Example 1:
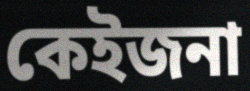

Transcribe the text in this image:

কেইজনা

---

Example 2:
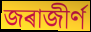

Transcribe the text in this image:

জৰাজীৰ্ণ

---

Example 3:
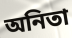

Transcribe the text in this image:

অনিতা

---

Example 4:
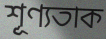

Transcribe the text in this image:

শূণ্যতাক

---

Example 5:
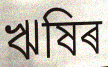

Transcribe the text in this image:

ঋষিৰ